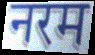
नरम